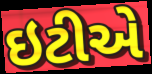
ઇટીએ